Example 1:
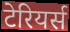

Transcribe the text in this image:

टेरियर्स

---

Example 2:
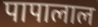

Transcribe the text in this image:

पापालाल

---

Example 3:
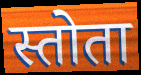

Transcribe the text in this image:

स्तोता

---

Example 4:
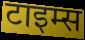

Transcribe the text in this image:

टाइम्‍स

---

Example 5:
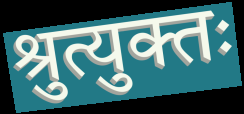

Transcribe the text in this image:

श्रुत्युक्तः